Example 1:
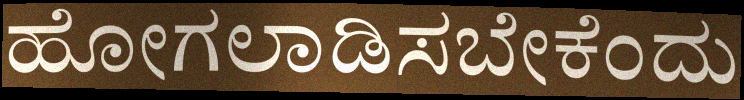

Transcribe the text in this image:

ಹೋಗಲಾಡಿಸಬೇಕೆಂದು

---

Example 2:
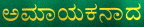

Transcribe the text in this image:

ಅಮಾಯಕನಾದ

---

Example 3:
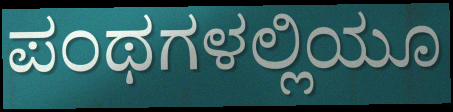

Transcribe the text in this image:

ಪಂಥಗಳಲ್ಲಿಯೂ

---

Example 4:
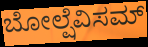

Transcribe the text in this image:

ಬೋಲ್ಷೆವಿಸಮ್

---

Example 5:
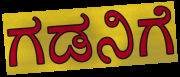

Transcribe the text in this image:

ಗಡನಿಗೆ